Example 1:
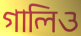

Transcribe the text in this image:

গালিও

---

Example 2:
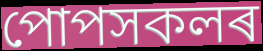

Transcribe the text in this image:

পোপসকলৰ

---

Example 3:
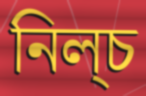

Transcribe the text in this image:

নিল্চ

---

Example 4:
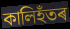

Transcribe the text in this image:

কালিহঁতৰ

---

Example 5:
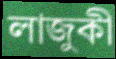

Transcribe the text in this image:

লাজুকী